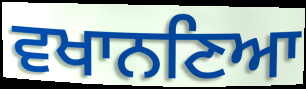
ਵਖਾਨਣਿਆ